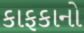
કાફકાનો